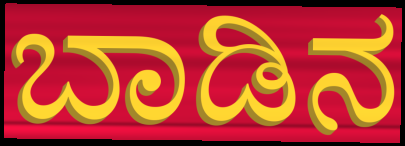
ಬಾಡಿನ